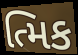
ત્મિક